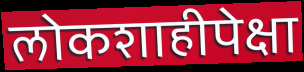
लोकशाहीपेक्षा